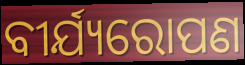
ବୀର୍ଯ୍ୟରୋପଣ